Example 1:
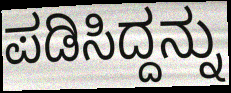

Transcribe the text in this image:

ಪಡಿಸಿದ್ದನ್ನು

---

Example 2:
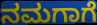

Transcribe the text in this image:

ನಮಗಾಗೆ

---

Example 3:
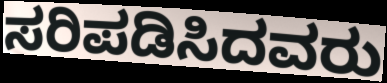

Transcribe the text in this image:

ಸರಿಪಡಿಸಿದವರು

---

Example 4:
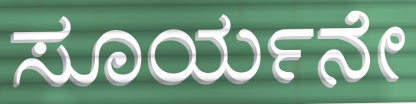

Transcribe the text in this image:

ಸೂರ್ಯನೇ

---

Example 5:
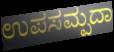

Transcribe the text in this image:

ಉಪಸಮ್ಪದಾ